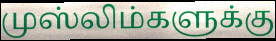
முஸ்லிம்களுக்கு